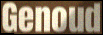
Genoud